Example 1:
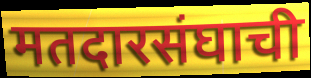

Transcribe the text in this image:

मतदारसंघाची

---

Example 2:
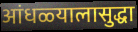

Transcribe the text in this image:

आंधळ्यालासुद्धा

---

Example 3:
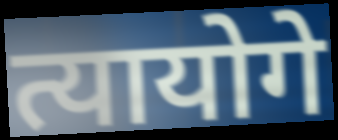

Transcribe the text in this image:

त्यायोगे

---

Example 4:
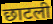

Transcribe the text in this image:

छाटली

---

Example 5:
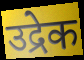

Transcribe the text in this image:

उद्रेक